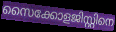
സൈക്കോളജിസ്റ്റിനെ